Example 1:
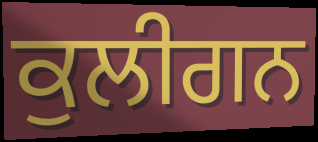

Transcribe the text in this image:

ਕੁਲੀਗਨ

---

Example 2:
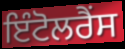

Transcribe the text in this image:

ਇੰਟੋਲਰੈਂਸ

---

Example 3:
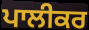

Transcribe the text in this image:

ਪਾਲੀਕਰ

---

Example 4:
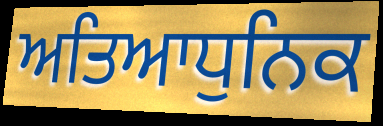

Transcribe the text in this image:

ਅਤਿਆਧੁਨਿਕ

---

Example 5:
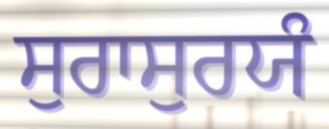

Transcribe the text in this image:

ਸੁਰਾਸੁਰਯੰ